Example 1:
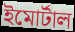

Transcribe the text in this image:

ইমোর্টাল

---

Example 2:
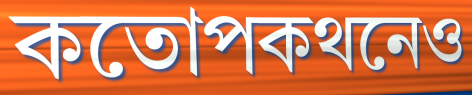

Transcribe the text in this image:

কতোপকথনেও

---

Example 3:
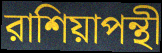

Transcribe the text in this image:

রাশিয়াপন্থী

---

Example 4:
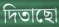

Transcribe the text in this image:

দিতাছো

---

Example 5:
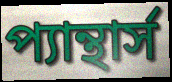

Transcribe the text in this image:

প্যান্থার্স